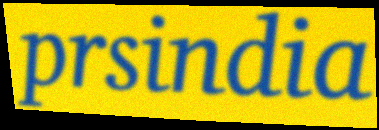
prsindia